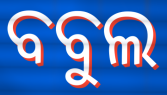
ବବୁଲ